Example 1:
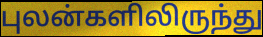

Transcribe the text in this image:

புலன்களிலிருந்து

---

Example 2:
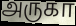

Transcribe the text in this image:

அருகா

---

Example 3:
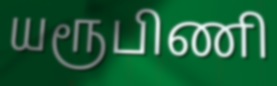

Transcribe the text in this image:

யரூபிணி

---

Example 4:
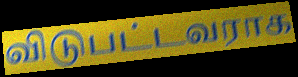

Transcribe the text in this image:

விடுபட்டவராக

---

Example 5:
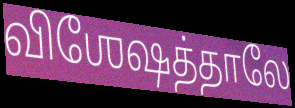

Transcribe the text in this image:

விஶேஷத்தாலே